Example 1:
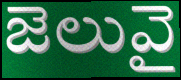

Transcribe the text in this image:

జెలువై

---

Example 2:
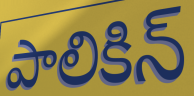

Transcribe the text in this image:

పాలికిన్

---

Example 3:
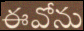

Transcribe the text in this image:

ఈవోను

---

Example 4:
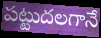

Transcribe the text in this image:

పట్టుదలగానే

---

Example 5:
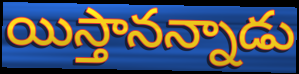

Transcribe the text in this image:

యిస్తానన్నాడు